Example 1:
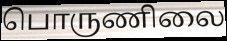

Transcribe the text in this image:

பொருணிலை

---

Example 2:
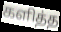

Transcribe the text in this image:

களித்த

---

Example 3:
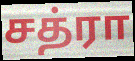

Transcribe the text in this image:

சத்ரா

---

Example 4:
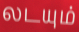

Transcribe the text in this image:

லடயும்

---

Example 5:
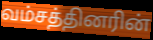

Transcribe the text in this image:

வம்சத்தினரின்